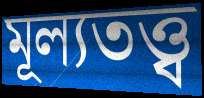
মূল্যতত্ত্ব